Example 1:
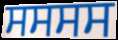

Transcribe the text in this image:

ਸਸਸਸ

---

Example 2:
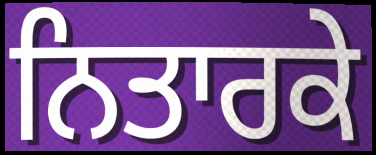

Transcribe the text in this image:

ਨਿਤਾਰਕੇ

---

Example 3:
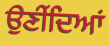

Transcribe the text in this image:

ਉਣੀਂਦਿਆਂ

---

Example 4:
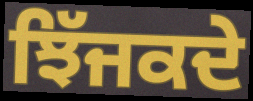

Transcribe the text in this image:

ਝਿੱਜਕਦੇ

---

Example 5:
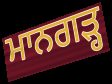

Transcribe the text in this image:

ਮਾਨਗੜ੍ਹ